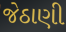
જેઠાણી